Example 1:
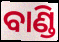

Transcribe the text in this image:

ବାଣ୍ଡି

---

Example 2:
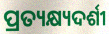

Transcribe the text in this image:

ପ୍ରତ୍ୟକ୍ଷ୍ୟଦର୍ଶୀ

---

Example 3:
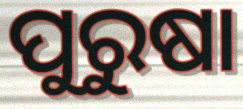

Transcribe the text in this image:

ପୁରୁଷା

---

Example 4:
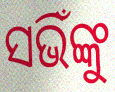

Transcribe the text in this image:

ସଭିଁଙ୍କୁ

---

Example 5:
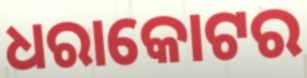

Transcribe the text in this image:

ଧରାକୋଟର